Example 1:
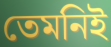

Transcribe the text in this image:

তেমনিই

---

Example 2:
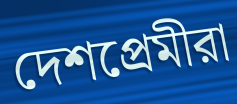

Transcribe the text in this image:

দেশপ্রেমীরা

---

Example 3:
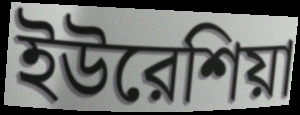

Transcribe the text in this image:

ইউরেশিয়া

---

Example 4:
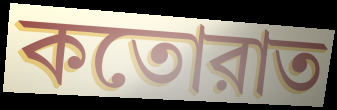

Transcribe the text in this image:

কতোরাত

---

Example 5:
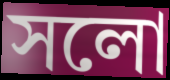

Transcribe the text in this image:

সলো